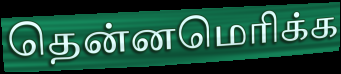
தென்னமெரிக்க